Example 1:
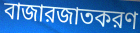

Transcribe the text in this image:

বাজারজাতকরণ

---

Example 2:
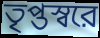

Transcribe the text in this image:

তৃপ্তস্বরে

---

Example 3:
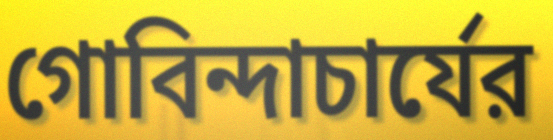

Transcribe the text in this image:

গোবিন্দাচার্যের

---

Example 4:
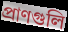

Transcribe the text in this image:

প্রাণগুলি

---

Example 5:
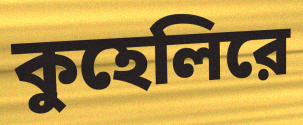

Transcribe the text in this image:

কুহেলিরে